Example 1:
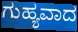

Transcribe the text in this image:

ಗುಹ್ಯವಾದ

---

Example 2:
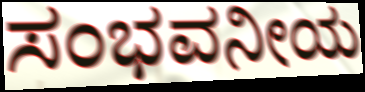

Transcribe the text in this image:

ಸಂಭವನೀಯ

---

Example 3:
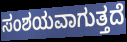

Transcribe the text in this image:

ಸಂಶಯವಾಗುತ್ತದೆ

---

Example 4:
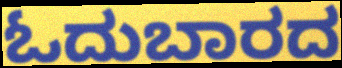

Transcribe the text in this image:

ಓದುಬಾರದ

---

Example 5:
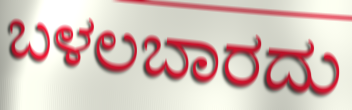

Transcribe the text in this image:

ಬಳಲಬಾರದು